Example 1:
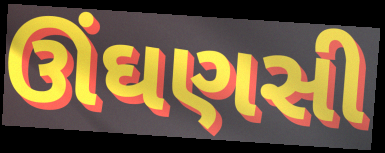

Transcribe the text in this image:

ઊંઘણસી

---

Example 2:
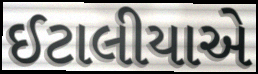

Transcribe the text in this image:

ઈટાલીયાએ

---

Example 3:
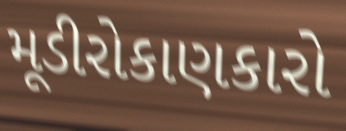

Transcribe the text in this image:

મૂડીરોકાણકારો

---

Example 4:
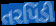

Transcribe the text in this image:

તરપિંડી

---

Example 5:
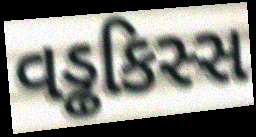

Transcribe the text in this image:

વડ્ઢકિસ્સ